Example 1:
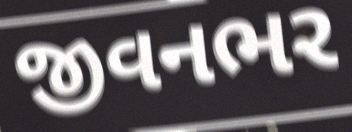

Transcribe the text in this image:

જીવનભર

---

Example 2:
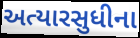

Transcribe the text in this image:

અત્યારસુધીના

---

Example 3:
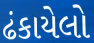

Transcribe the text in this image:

ઢંકાયેલો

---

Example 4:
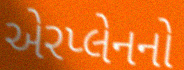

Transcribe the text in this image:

એરપ્લેનનો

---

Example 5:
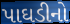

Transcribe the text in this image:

પાઘડીનો